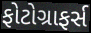
ફોટોગ્રાફર્સ